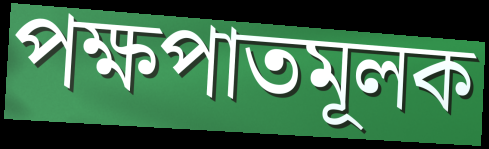
পক্ষপাতমূলক